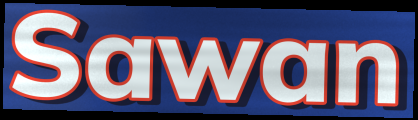
Sawan